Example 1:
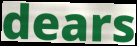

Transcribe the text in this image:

dears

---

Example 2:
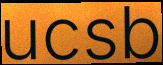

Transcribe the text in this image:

ucsb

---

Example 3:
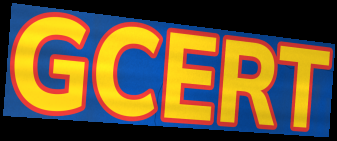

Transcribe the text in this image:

GCERT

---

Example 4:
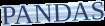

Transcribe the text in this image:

PANDAS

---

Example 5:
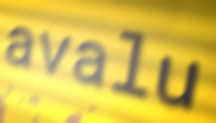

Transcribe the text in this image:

avalu